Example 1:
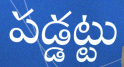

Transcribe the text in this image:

పడ్డట్టు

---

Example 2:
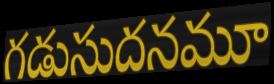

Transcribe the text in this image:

గడుసుదనమూ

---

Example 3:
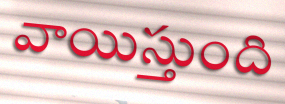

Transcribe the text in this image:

వాయిస్తుంది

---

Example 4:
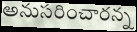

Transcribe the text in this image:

అనుసరించారన్న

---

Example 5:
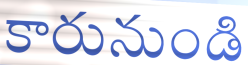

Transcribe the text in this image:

కారునుండి